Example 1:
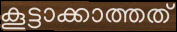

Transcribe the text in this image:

കൂട്ടാക്കാത്തത്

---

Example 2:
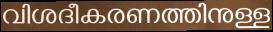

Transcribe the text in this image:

വിശദീകരണത്തിനുള്ള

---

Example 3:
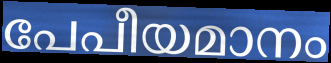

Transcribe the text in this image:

പേപീയമാനം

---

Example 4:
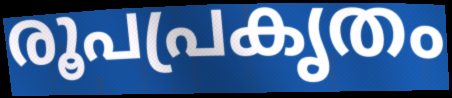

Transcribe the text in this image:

രൂപപ്രകൃതം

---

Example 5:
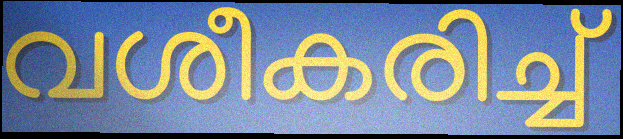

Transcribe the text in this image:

വശീകരിച്ച്